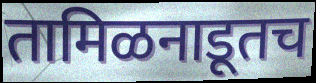
तामिळनाडूतच